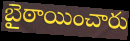
బైఠాయించారు